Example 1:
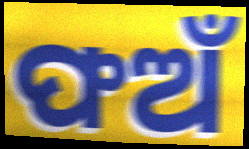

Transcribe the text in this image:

ଫଅଁ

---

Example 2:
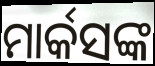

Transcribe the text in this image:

ମାର୍କସଙ୍କ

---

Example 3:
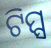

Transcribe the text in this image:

ଟିପ୍ସ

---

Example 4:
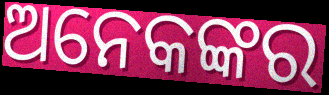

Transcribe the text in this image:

ଅନେକଙ୍କର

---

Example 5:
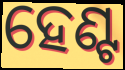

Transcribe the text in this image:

ହେଣ୍ଟ